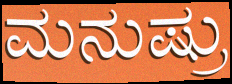
ಮನುಷ್ರು